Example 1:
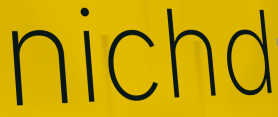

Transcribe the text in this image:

nichd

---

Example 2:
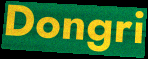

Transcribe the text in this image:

Dongri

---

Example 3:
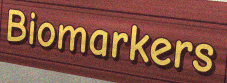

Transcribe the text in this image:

Biomarkers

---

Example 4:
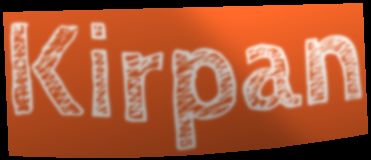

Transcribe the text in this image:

Kirpan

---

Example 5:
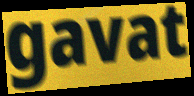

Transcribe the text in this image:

gavat